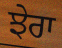
ਝੇਰਾ